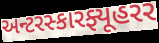
અન્ટરસ્કારફ્યૂહરર